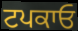
ਟਪਕਾਓ